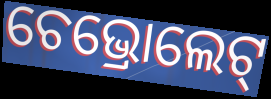
ଚେଭ୍ରୋଲେଟ୍